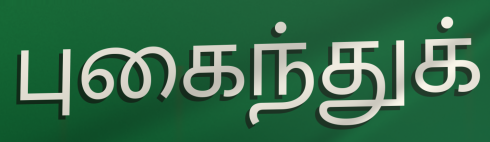
புகைந்துக்